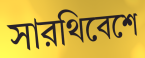
সারথিবেশে